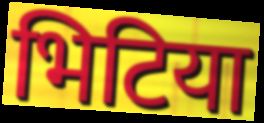
भिटिया